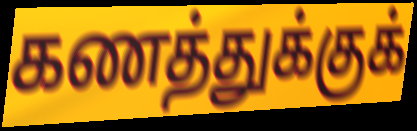
கணத்துக்குக்